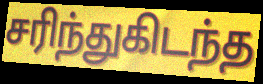
சரிந்துகிடந்த